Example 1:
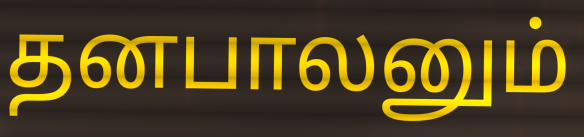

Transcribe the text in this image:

தனபாலனும்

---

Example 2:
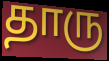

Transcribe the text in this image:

தாரு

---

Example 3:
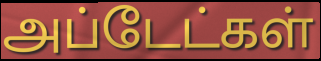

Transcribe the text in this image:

அப்டேட்கள்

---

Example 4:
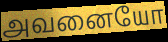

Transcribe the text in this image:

அவனையோ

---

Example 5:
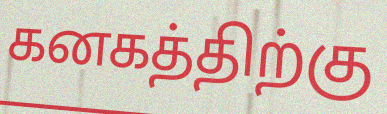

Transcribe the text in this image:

கனகத்திற்கு